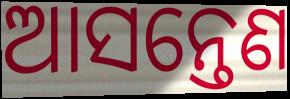
ଆସନ୍ତେଣ